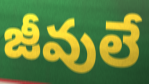
జీవులే